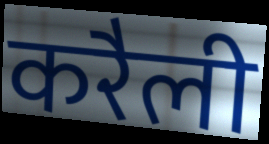
करैली